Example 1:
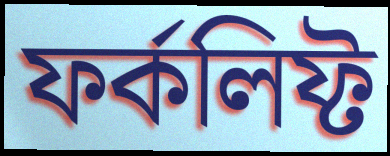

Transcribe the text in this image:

ফর্কলিফ্ট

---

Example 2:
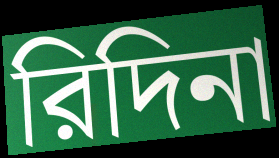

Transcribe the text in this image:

রিদিনা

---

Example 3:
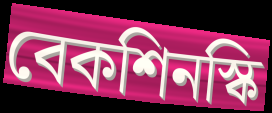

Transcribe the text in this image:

বেকশিনস্কি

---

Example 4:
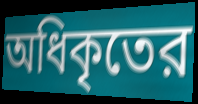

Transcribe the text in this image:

অধিকৃতের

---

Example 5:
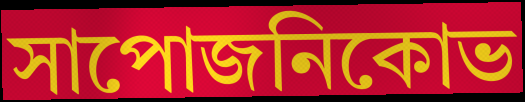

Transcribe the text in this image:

সাপোজনিকোভ